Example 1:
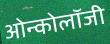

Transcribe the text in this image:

ओन्कोलॉजी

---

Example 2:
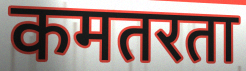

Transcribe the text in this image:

कमतरता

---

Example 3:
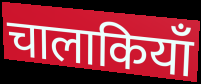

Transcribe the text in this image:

चालाकियाँ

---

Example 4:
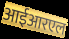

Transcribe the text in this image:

आईआरएल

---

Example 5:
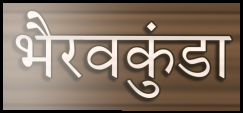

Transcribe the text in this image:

भैरवकुंडा